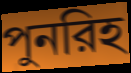
পুনরিহ